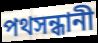
পথসন্ধানী